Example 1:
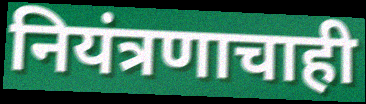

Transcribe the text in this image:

नियंत्रणाचाही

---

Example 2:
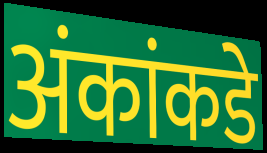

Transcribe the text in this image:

अंकांकडे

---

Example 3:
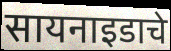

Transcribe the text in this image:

सायनाइडाचे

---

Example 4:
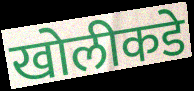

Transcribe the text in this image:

खोलीकडे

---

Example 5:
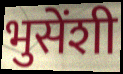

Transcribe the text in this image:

भुसेंशी